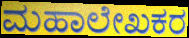
ಮಹಾಲೇಖಕರ